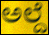
ಅಲ್ದೆ